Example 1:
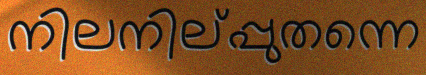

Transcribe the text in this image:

നിലനില്പ്പുതന്നെ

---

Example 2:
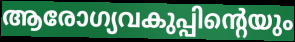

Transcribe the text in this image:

ആരോഗ്യവകുപ്പിന്റെയും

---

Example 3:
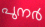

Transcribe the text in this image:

പുനർ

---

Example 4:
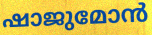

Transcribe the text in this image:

ഷാജുമോൻ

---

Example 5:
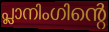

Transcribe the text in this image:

പ്ലാനിംഗിന്റെ